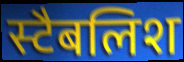
स्टैबलिश